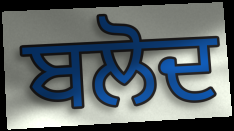
ਬਲੋਦ